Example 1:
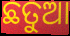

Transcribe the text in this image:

ଛତୁଆ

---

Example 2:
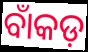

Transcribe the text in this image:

ବାଁକଡ଼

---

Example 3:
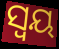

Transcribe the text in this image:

ସ୍ୱୟ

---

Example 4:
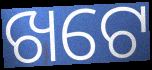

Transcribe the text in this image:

ଖଟେ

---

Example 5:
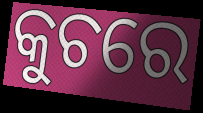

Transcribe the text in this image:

କୁଚରେ